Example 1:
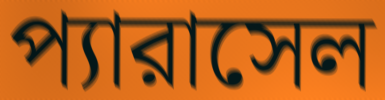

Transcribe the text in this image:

প্যারাসেল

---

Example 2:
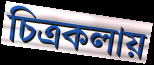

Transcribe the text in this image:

চিত্রকলায়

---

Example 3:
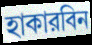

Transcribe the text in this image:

হাকারবিন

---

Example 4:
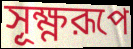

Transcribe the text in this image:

সূক্ষ্ণরূপে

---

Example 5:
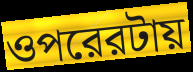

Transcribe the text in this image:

ওপরেরটায়